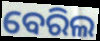
ବେରିଲ